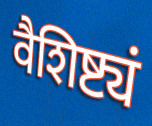
वैशिष्ट्यं